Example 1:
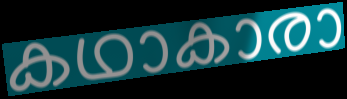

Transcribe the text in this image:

കഥാകാരാ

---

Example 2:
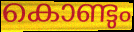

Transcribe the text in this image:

കൊണ്ടും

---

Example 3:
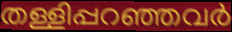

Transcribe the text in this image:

തള്ളിപ്പറഞ്ഞവർ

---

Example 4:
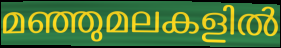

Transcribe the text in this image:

മഞ്ഞുമലകളിൽ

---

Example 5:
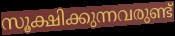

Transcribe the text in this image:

സൂക്ഷിക്കുന്നവരുണ്ട്